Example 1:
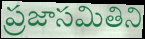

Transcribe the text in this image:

ప్రజాసమితిని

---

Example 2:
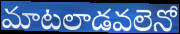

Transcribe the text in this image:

మాటలాడవలెనో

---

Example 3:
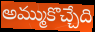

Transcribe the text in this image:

అమ్ముకొచ్చేది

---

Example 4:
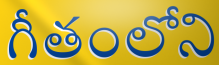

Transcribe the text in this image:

గీతంలోని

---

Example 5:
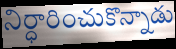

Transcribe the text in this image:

నిర్ధారించుకొన్నాడు